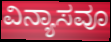
ವಿನ್ಯಾಸವೂ